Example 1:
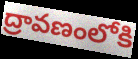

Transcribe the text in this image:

ద్రావణంలోకి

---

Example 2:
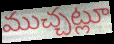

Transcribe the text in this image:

ముచ్చట్లూ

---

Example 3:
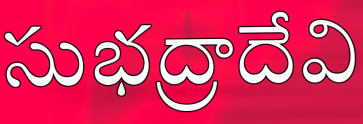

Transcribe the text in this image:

సుభద్రాదేవి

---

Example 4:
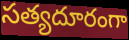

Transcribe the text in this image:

సత్యదూరంగా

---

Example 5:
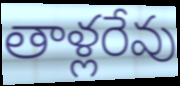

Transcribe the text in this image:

తాళ్లరేవు